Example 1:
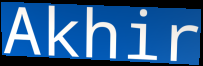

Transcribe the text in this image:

Akhir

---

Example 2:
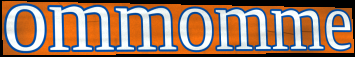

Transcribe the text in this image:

ommomme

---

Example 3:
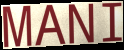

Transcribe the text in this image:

MANI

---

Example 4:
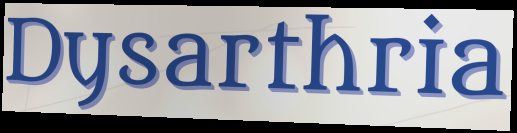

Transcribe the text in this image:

Dysarthria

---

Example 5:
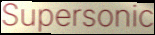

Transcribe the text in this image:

Supersonic